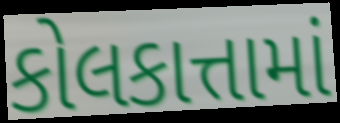
કોલકાત્તામાં